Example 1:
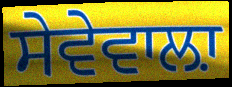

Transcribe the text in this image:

ਸੇਵੇਵਾਲ਼ਾ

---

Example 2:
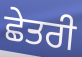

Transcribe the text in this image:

ਛੇਤਰੀ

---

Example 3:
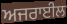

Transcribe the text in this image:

ਅਜਰਾਈਲ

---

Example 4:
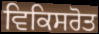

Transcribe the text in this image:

ਵਿਕਿਸਰੋਤ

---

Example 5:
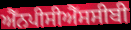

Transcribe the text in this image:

ਐੱਨਪੀਸੀਐੱਸਸੀਬੀ